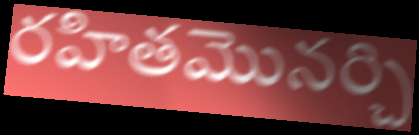
రహితమొనర్చి